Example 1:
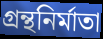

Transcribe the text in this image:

গ্রন্থনির্মাতা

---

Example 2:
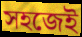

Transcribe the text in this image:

সহজেই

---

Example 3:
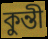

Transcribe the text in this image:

কুন্তী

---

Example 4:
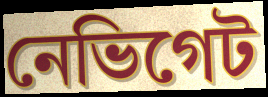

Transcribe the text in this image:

নেভিগেট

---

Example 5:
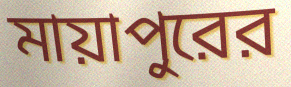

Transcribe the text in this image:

মায়াপুরের